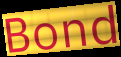
Bond